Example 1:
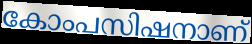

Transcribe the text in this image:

കോംപസിഷനാണ്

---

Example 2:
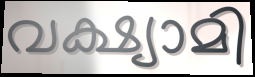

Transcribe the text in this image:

വക്ഷ്യാമി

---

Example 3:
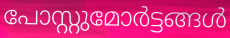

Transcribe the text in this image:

പോസ്റ്റുമോർട്ടങ്ങൾ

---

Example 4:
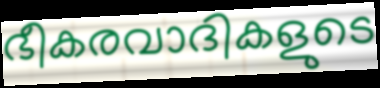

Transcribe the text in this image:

ഭീകരവാദികളുടെ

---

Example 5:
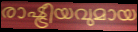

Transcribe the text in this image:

രാഷ്ട്രീയവുമായ